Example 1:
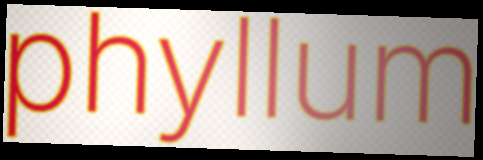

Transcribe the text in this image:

phyllum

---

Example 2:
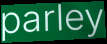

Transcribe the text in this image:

parley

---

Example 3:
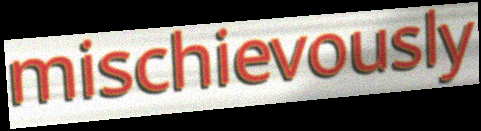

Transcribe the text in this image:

mischievously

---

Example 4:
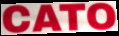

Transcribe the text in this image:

CATO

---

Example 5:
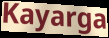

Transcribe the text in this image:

Kayarga